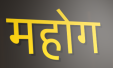
महोग